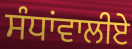
ਸੰਧਾਂਵਾਲੀਏ